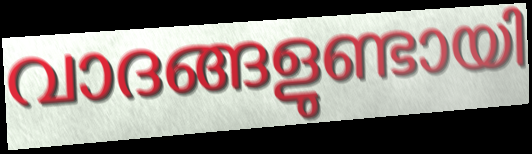
വാദങ്ങളുണ്ടായി